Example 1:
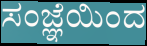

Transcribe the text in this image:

ಸಂಜ್ಞೆಯಿಂದ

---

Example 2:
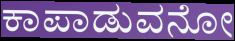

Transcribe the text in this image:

ಕಾಪಾಡುವನೋ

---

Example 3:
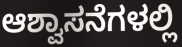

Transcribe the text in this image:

ಆಶ್ವಾಸನೆಗಳಲ್ಲಿ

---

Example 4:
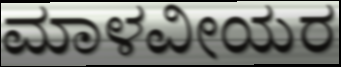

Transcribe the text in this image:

ಮಾಳವೀಯರ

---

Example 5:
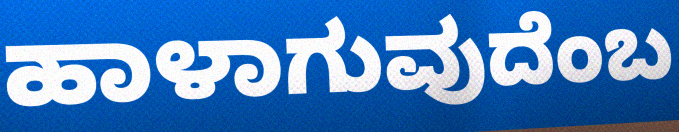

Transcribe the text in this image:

ಹಾಳಾಗುವುದೆಂಬ